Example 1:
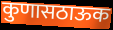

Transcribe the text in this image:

कुणासठाऊक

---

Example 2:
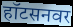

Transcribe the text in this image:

हॉटसनवर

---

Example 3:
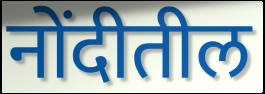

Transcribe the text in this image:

नोंदीतील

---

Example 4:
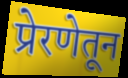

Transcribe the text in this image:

प्रेरणेतून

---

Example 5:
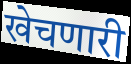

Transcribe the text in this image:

खेचणारी